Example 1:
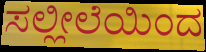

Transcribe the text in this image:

ಸಲ್ಲೀಲೆಯಿಂದ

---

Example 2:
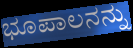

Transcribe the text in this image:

ಭೂಪಾಲನನ್ನು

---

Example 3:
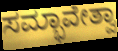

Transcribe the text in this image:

ಸಮ್ಭಾವೇತ್ವಾ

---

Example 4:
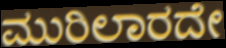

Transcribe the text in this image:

ಮುರಿಲಾರದೇ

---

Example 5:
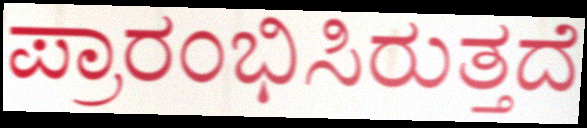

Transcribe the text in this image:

ಪ್ರಾರಂಭಿಸಿರುತ್ತದೆ